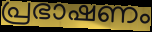
പ്രഭാഷണം